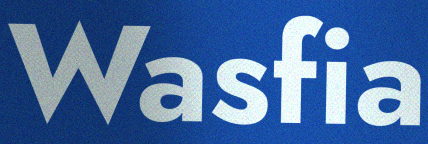
Wasfia